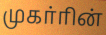
முகர்ரின்